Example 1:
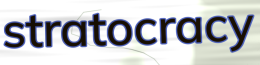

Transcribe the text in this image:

stratocracy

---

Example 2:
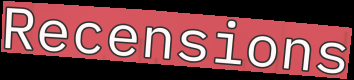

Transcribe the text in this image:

Recensions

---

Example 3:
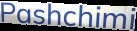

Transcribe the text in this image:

Pashchimi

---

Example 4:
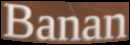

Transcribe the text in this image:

Banan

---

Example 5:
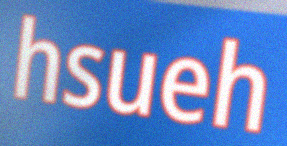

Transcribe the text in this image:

hsueh